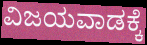
ವಿಜಯವಾಡಕ್ಕೆ